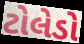
ટોલેડો